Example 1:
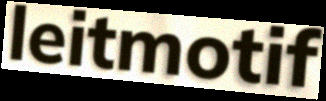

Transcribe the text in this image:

leitmotif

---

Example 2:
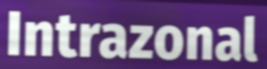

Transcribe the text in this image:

Intrazonal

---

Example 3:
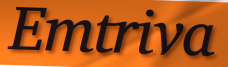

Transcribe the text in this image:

Emtriva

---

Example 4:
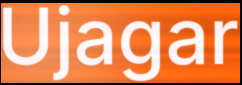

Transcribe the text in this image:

Ujagar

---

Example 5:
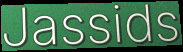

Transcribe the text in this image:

Jassids